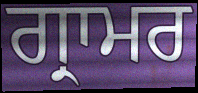
ਗ੍ਰਾਮਰ